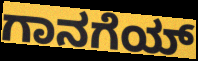
ಗಾನಗೆಯ್